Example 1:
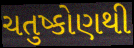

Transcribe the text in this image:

ચતુષ્કોણથી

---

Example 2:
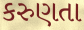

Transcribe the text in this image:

કરુણતા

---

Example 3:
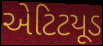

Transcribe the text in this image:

એટિટયૂડ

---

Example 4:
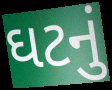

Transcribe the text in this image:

ઘટનું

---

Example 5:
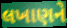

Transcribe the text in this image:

લખાણને